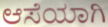
ಆಸೆಯಾಗಿ